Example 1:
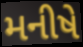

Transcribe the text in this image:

મનીષે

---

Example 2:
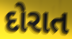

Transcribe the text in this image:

દોરાત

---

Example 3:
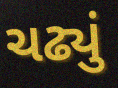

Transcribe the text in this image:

ચઢ્યું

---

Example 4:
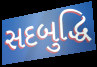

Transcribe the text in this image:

સદબુદ્ધિ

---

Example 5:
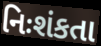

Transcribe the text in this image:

નિઃશંકતા